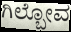
ಗಿಲ್ಬೋವ